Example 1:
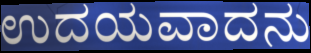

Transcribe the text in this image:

ಉದಯವಾದನು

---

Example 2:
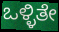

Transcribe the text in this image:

ಒಳ್ಳಿತೇ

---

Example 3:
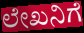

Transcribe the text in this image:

ಲೇಖನಿಗೆ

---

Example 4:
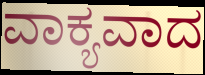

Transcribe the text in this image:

ವಾಕ್ಯವಾದ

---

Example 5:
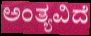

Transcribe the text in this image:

ಅಂತ್ಯವಿದೆ